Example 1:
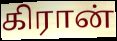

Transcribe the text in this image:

கிரான்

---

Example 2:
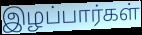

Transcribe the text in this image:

இழப்பார்கள்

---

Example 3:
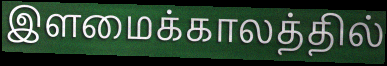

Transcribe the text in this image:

இளமைக்காலத்தில்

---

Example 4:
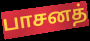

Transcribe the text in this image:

பாசனத்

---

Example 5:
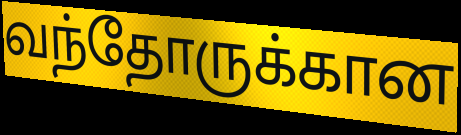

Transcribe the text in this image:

வந்தோருக்கான